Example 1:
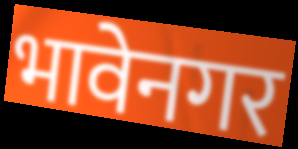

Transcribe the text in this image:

भावेनगर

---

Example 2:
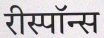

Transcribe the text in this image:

रीस्पॉन्स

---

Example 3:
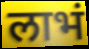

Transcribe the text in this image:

लाभं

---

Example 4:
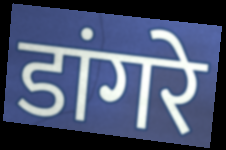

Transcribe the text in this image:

डांगरे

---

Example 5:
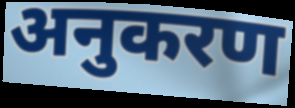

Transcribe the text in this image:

अनुकरण